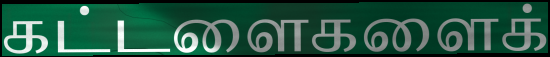
கட்டளைகளைக்